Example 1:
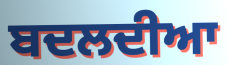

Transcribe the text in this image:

ਬਦਲਦੀਆ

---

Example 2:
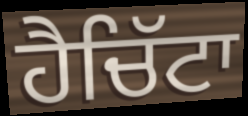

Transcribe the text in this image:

ਹੈਚਿੱਟਾ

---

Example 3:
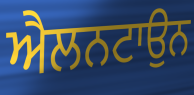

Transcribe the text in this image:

ਐਲਨਟਾਉਨ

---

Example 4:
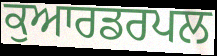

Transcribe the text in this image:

ਕੁਆਰਡਰਪਲ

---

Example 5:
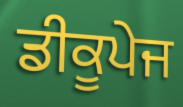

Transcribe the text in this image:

ਡੀਕੂਪੇਜ